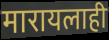
मारायलाही